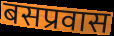
बसप्रवास